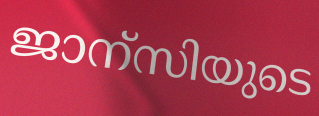
ജാന്സിയുടെ